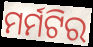
ମର୍ମଟିର